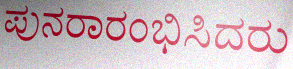
ಪುನರಾರಂಭಿಸಿದರು